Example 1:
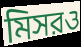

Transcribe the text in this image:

মিসরও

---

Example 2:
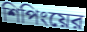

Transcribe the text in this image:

শিপিংয়ের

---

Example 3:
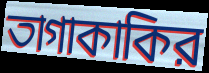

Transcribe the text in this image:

তাগাকাকির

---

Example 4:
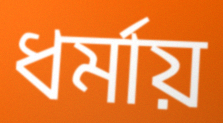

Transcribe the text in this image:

ধর্মায়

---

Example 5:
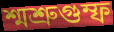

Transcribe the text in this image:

শ্মশ্রুগুম্ফ